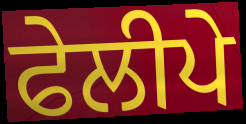
ਫੇਲੀਪੇ